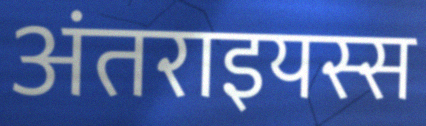
अंतराइयस्स